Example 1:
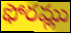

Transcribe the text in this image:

ఫోరమ్లు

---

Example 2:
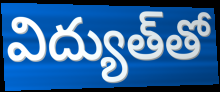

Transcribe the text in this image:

విద్యుత్‌తో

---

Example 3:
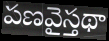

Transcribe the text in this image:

పణవైస్తథా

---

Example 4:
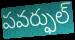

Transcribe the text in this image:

పవర్ఫుల్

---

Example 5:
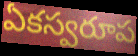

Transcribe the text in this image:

ఏకస్వరూప